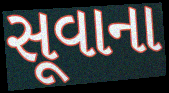
સૂવાના